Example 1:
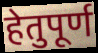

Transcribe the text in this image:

हेतुपूर्ण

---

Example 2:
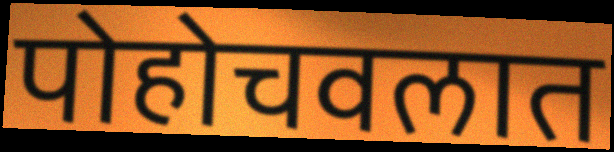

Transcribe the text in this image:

पोहोचवलात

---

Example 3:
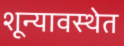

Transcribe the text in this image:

शून्यावस्थेत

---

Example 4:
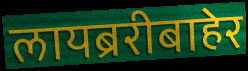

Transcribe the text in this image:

लायब्ररीबाहेर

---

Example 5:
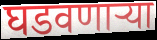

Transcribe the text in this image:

घडवणार्‍या